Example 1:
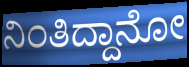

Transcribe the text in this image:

ನಿಂತಿದ್ದಾನೋ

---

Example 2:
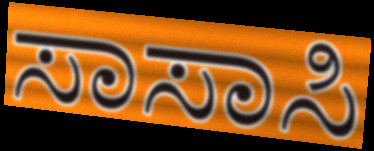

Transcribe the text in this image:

ಸಾಸಾಸಿ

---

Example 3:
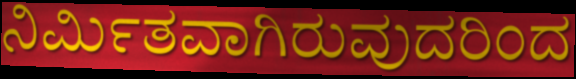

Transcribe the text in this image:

ನಿರ್ಮಿತವಾಗಿರುವುದರಿಂದ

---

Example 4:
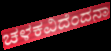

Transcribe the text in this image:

ಚಳಕವಿದೆಂದನಾ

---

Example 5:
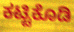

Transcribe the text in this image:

ಕಟ್ಟಿಕೊಡಿ